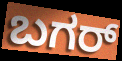
ಬಗರ್